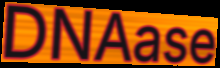
DNAase